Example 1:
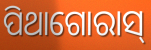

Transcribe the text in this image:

ପିଥାଗୋରାସ୍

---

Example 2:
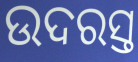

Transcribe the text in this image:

ଉଦରସ୍ତ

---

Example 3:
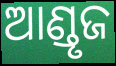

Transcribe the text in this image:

ଆଣ୍ଡୃଜ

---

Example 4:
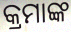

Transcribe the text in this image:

କ୍ରମାଙ୍କ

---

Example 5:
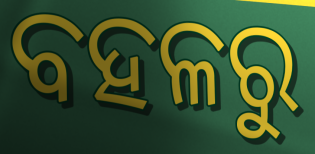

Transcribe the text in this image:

ବହଳରୁ